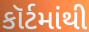
કૉર્ટમાંથી